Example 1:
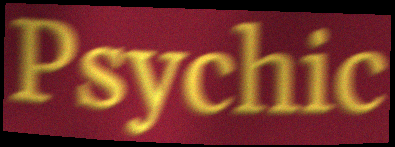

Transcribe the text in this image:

Psychic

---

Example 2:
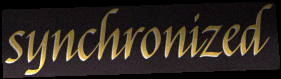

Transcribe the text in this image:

synchronized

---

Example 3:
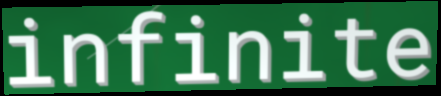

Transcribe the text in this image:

infinite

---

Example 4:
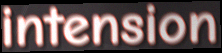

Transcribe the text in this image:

intension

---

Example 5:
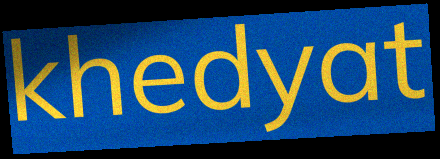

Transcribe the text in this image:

khedyat